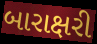
બારાક્ષરી